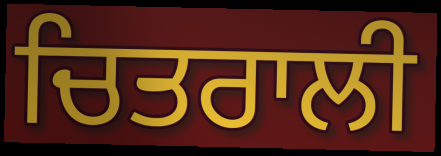
ਚਿਤਰਾਲੀ